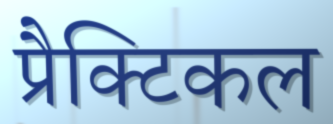
प्रैक्टिकल